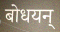
बोधयन्